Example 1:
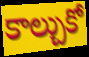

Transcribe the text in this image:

కాల్చుకో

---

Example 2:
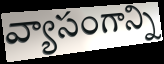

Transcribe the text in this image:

వ్యాసంగాన్ని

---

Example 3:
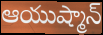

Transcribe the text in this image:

ఆయుష్మాన్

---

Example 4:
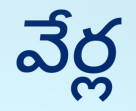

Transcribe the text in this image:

వేర్ల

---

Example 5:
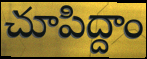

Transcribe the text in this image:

చూపిద్దాం